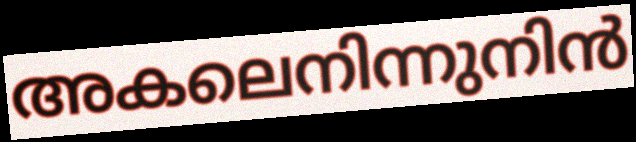
അകലെനിന്നുനിൻ